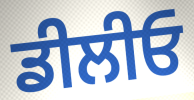
ਡੀਲੀਓ